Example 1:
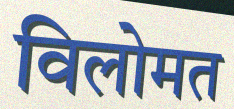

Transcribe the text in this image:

विलोमत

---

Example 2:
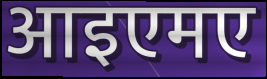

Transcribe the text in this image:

आइएमए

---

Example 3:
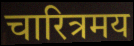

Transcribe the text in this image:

चारित्रमय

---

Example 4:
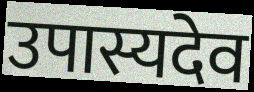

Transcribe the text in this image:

उपास्यदेव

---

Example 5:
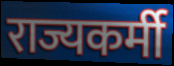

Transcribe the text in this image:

राज्यकर्मी